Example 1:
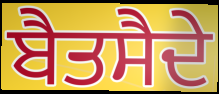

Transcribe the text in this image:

ਬੈਤਸੈਦੇ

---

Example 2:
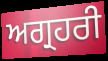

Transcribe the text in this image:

ਅਗ੍ਰਹਰੀ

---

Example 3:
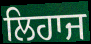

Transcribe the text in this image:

ਲਿਹਾਜ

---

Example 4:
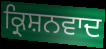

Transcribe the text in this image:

ਕ੍ਰਿਸ਼ਨਵਾਦ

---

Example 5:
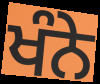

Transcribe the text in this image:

ਖੰਨੇ